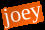
joey